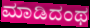
ಮಾಡಿದಂಥ